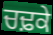
ਚਢ਼ਕੇ